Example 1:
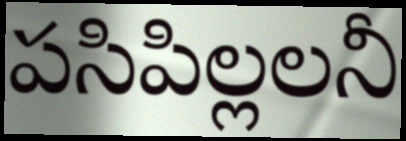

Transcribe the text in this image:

పసిపిల్లలనీ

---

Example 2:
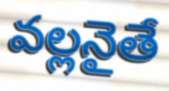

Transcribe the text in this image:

వల్లనైతే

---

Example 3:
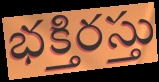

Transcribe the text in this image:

భక్తిరస్తు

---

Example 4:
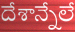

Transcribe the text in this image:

దేశాన్నేలే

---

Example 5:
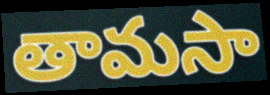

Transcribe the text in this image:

తామసా